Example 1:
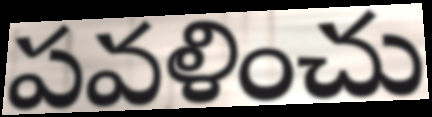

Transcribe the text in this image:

పవళించు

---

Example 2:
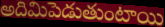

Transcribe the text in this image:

అదిమిపెడుతుంటాయి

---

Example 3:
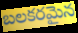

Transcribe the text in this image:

బలకరమైన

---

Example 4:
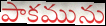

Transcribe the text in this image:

పాకమును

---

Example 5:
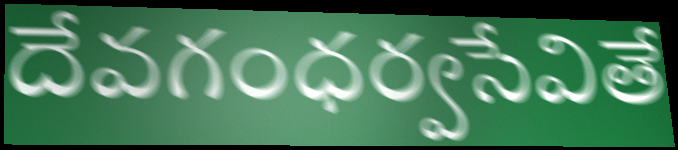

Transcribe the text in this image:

దేవగంధర్వసేవితే